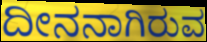
ದೀನನಾಗಿರುವ